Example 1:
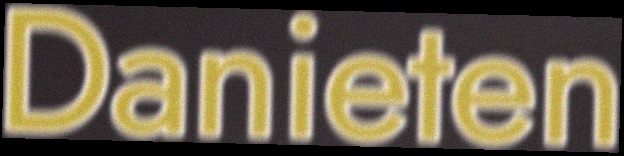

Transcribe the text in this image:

Danieten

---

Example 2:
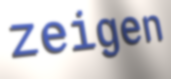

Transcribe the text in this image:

zeigen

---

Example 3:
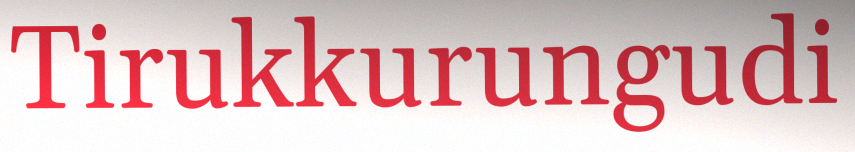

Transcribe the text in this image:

Tirukkurungudi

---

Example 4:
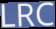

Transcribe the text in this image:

LRC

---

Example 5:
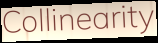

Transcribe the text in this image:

Collinearity